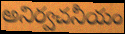
అనిర్వచనీయం